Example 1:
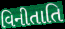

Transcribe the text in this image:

વિનીતાતિ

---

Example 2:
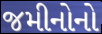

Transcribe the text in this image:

જમીનોનો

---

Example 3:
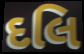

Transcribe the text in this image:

દલિ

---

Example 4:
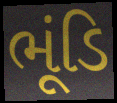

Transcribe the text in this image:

ભૂંડિ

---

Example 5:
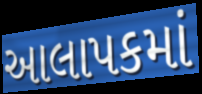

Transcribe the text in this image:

આલાપકમાં